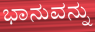
ಭಾನುವನ್ನು